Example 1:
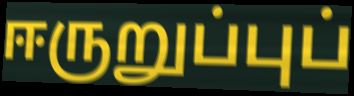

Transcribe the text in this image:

ஈருறுப்புப்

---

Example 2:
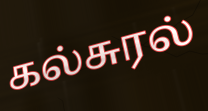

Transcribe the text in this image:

கல்சுரல்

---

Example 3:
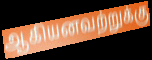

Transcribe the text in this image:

ஆகியனவற்றுக்கு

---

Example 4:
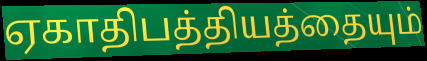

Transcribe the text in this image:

ஏகாதிபத்தியத்தையும்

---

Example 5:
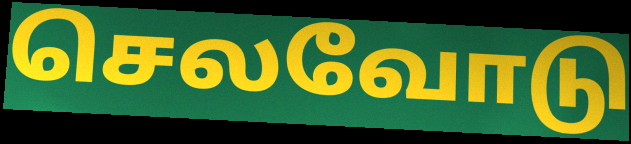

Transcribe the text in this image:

செலவோடு